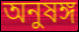
অনুষঙ্গ